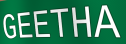
GEETHA